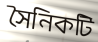
সৈনিকটি